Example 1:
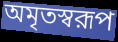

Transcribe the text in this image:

অমৃতস্বরূপ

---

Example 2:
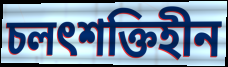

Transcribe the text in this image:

চলৎশক্তিহীন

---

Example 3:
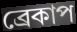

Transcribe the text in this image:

ব্রেকাপ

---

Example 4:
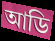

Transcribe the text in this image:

আডি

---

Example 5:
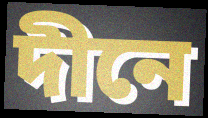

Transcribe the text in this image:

দীনে